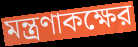
মন্ত্রণাকক্ষের